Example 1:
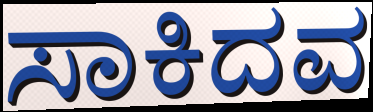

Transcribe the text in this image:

ಸಾಕಿದವ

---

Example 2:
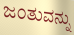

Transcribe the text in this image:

ಜಂತುವನ್ನು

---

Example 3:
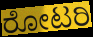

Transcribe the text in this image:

ರೋಟರಿ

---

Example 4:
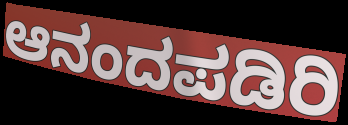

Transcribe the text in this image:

ಆನಂದಪಡಿರಿ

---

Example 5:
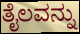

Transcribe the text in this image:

ತೈಲವನ್ನು